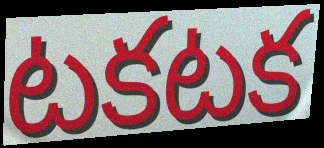
టకటక